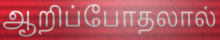
ஆறிப்போதலால்